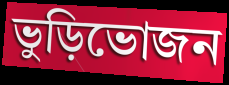
ভুড়িভোজন